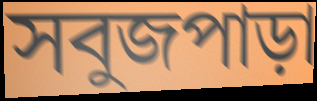
সবুজপাড়া